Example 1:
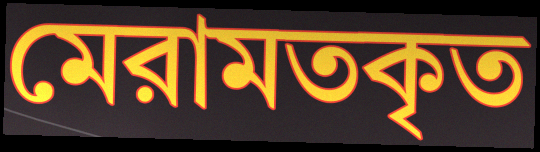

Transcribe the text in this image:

মেরামতকৃত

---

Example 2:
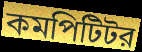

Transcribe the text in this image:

কমপিটিটর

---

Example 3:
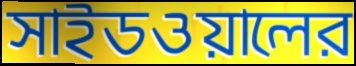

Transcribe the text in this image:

সাইডওয়ালের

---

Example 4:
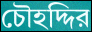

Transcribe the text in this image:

চৌহদ্দির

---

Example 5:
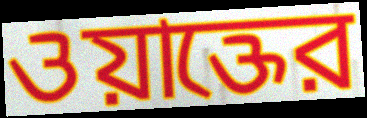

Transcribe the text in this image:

ওয়াক্তের